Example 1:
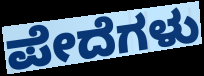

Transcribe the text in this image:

ಪೇದೆಗಳು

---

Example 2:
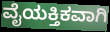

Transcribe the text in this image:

ವೈಯಕ್ತಿಕವಾಗಿ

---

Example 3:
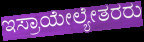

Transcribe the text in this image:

ಇಸ್ರಾಯೇಲ್ಯೇತರರು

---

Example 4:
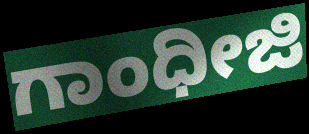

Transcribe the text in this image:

ಗಾಂಧೀಜಿ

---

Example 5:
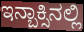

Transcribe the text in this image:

ಇನ್ಬಾಕ್ಸಿನಲ್ಲಿ